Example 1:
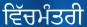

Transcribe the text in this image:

ਵਿੱਚਮੰਤਰੀ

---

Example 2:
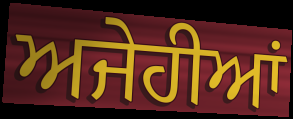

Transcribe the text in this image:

ਅਜੇਹੀਆਂ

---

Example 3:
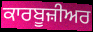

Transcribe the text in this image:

ਕਾਰਬੂਜ਼ੀਅਰ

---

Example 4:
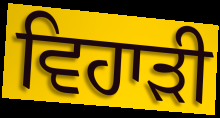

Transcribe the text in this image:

ਵਿਹਾੜੀ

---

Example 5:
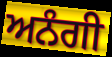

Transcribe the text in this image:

ਅਨੰਗੀ